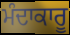
ਮੰਦਾਕਾਰੂ